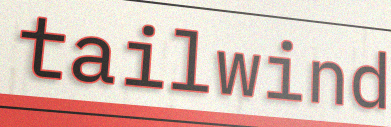
tailwind